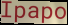
Ipapo